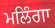
ਮਲਿੰਗਾ